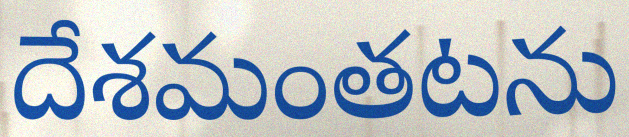
దేశమంతటను